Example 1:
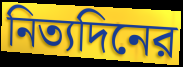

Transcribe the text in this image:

নিত্যদিনের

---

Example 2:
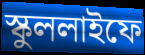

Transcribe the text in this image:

স্কুললাইফে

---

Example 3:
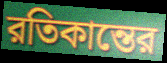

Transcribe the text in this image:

রতিকান্তের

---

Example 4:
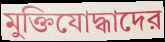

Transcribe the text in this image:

মুক্তিযোদ্ধাদের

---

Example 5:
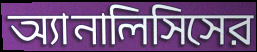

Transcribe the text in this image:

অ্যানালিসিসের